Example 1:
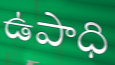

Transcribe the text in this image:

ఉపాధి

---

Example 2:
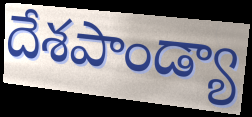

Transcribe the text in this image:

దేశపాండ్యా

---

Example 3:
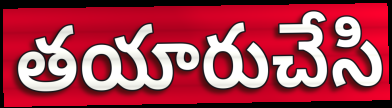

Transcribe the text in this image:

తయారుచేసి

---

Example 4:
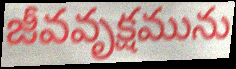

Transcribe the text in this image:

జీవవృక్షమును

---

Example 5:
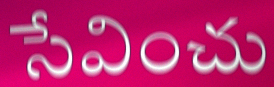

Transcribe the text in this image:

సేవించు